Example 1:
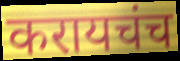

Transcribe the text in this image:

करायचंच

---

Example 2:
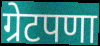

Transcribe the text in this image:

ग्रेटपणा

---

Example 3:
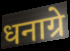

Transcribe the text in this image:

धनाग्रे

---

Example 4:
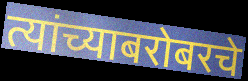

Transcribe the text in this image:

त्यांच्याबरोबरचे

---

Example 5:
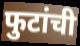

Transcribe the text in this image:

फुटांची